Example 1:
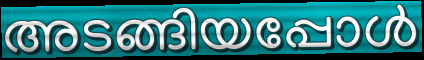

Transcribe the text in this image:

അടങ്ങിയപ്പോൾ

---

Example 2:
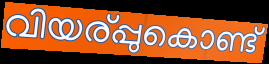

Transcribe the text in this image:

വിയര്പ്പുകൊണ്ട്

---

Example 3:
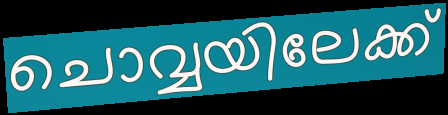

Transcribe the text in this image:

ചൊവ്വയിലേക്ക്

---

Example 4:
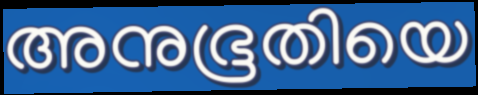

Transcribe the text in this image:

അനുഭൂതിയെ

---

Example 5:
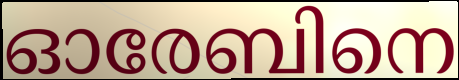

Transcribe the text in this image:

ഓരേബിനെ